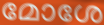
മോശേ